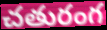
చతురంగ